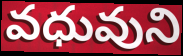
వధువుని